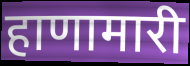
हाणामारी